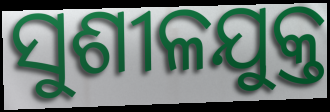
ସୁଶୀଳଯୁକ୍ତ